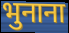
भुनाना